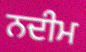
ਨਦੀਮ